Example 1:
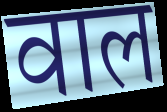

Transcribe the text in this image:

वाल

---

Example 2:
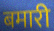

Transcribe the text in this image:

बमारी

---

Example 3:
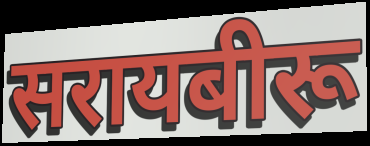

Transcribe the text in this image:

सरायबीरू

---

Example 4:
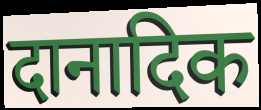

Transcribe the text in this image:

दानादिक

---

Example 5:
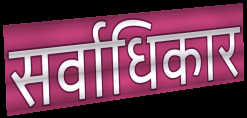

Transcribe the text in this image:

सर्वाधिकार